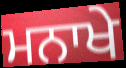
ਮਨਾਖੇ